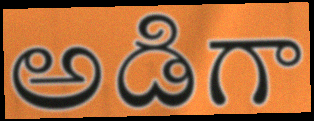
అడిగా